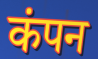
कंपन